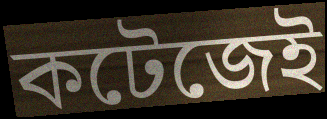
কটেজেই